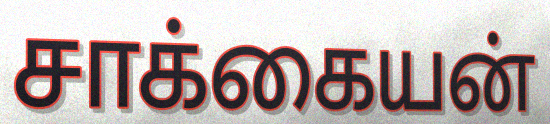
சாக்கையன்